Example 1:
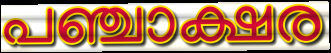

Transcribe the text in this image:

പഞ്ചാക്ഷര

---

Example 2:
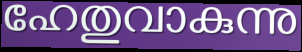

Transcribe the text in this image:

ഹേതുവാകുന്നു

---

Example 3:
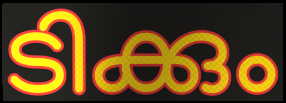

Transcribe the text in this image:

ടിക്കും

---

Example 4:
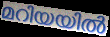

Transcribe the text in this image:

മറിയയിൽ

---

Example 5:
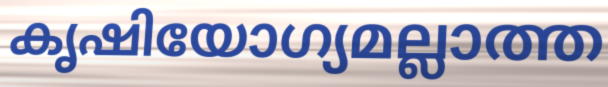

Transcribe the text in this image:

കൃഷിയോഗ്യമല്ലാത്ത